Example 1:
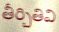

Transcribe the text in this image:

తీర్చితివి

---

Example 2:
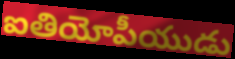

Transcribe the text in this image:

ఐతియోపీయుడు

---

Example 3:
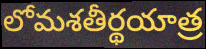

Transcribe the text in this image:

లోమశతీర్థయాత్ర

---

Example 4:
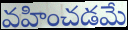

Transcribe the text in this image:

వహించడమే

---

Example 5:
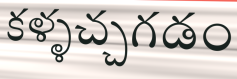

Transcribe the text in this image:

కళ్ళచ్చగడం